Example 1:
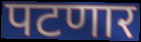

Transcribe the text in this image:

पटणार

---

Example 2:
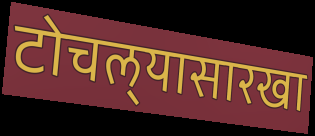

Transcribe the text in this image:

टोचल्यासारखा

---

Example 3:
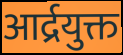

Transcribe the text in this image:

आर्द्रयुक्त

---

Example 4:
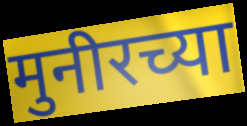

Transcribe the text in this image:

मुनीरच्या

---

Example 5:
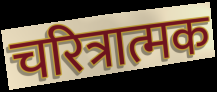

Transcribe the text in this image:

चरित्रात्मक